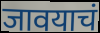
जावयाचं